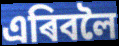
এৰিবলৈ